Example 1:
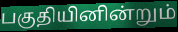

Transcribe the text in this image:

பகுதியினின்றும்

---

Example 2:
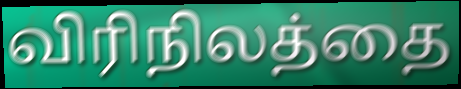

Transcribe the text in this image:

விரிநிலத்தை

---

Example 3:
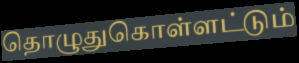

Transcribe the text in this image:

தொழுதுகொள்ளட்டும்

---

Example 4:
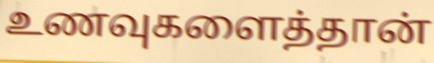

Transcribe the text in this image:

உணவுகளைத்தான்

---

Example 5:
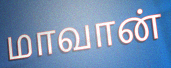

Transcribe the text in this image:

மாவான்